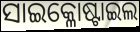
ସାଇକ୍ଳୋଷ୍ଟାଇଲ